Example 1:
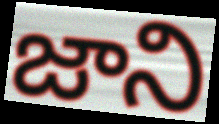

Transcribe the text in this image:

జాని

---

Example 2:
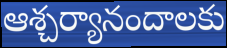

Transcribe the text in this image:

ఆశ్చర్యానందాలకు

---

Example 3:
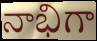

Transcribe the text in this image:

నాభిగా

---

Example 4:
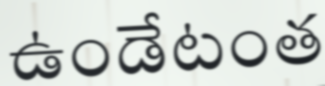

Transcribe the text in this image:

ఉండేటంత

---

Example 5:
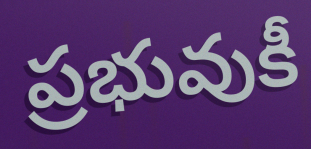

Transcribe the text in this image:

ప్రభువుకీ